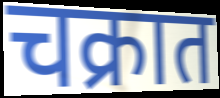
चक्रात